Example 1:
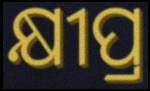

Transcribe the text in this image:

କ୍ଷୀପ୍ର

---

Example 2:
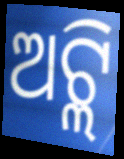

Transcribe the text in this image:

ଅଟ୍ଲି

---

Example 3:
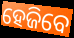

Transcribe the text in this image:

ହେଜିବେ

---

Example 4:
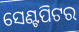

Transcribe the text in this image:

ସେଣ୍ଟପିଟର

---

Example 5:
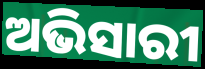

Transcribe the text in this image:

ଅଭିସାରୀ